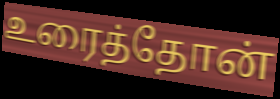
உரைத்தோன்